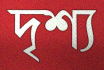
দৃশ্য